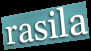
rasila